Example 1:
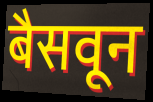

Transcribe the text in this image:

बैसवून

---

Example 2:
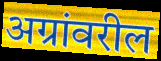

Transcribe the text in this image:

अग्रांवरील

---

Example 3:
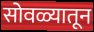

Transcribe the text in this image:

सोवळ्यातून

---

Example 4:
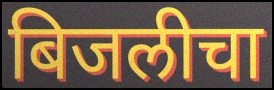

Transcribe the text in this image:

बिजलीचा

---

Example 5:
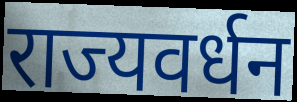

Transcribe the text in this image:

राज्यवर्धन